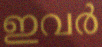
ഇവർ